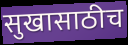
सुखासाठीच